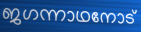
ജഗന്നാഥനോട്